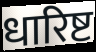
धारिष्ट